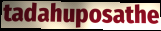
tadahuposathe